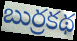
బుర్రకథ